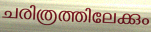
ചരിത്രത്തിലേക്കും